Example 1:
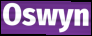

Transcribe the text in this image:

Oswyn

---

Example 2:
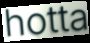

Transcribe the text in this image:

hotta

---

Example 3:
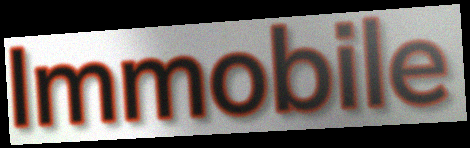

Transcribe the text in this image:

Immobile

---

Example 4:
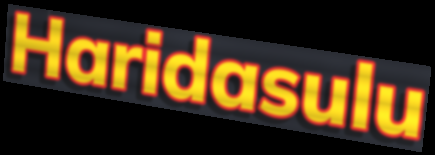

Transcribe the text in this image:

Haridasulu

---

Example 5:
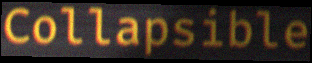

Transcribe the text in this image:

Collapsible